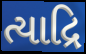
ત્યાદ્રિ